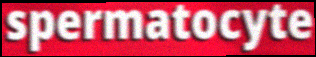
spermatocyte